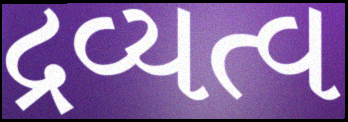
દ્રવ્યત્વ